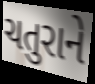
ચતુરાને